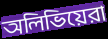
অলিভিয়েরা